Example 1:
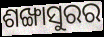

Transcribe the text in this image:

ଶଙ୍ଖାସୁରର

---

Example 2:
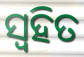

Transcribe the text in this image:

ସ୍ୱହିତ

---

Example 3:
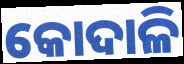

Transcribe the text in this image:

କୋଦାଳି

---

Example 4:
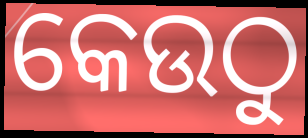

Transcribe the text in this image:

କେଉଠୁ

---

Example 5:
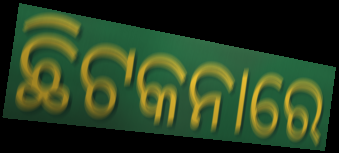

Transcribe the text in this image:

ଛିଟକନାରେ